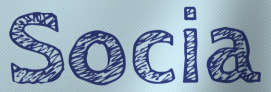
Socia